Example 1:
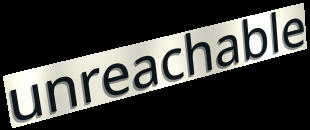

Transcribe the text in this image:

unreachable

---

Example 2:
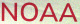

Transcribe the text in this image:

NOAA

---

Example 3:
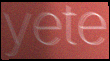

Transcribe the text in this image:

yete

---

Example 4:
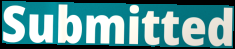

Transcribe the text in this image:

Submitted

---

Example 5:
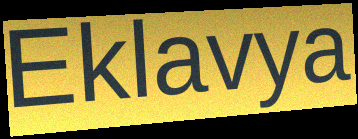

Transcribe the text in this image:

Eklavya